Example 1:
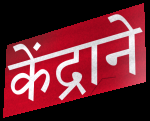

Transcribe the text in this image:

केंद्राने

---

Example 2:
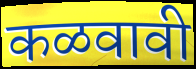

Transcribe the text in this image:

कळवावी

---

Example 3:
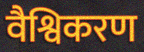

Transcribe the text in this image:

वैश्विकरण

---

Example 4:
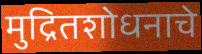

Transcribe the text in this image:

मुद्रितशोधनाचे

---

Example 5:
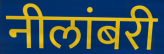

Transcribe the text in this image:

नीलांबरी